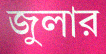
জুলার